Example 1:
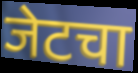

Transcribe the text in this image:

जेटचा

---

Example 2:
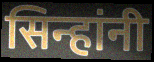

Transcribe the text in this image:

सिन्हांनी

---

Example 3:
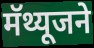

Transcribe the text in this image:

मॅथ्यूजने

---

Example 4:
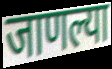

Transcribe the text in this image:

जाणल्या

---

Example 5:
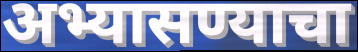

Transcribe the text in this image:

अभ्यासण्याचा